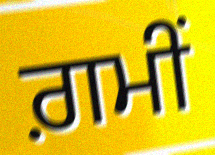
ਗ਼ਮੀਂ